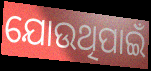
ଯୋଉଥିପାଇଁ